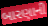
બારણાની